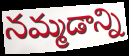
నమ్మడాన్ని